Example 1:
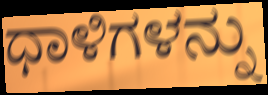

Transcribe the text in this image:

ಧಾಳಿಗಳನ್ನು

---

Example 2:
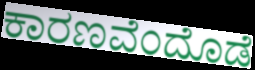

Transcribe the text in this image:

ಕಾರಣವೆಂದೊಡೆ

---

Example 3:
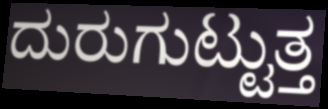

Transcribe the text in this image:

ದುರುಗುಟ್ಟುತ್ತ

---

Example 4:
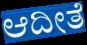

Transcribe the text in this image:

ಆದೀತೆ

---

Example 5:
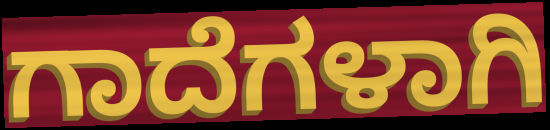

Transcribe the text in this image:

ಗಾದೆಗಳಾಗಿ